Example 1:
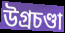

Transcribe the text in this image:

উগ্রচণ্ডা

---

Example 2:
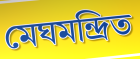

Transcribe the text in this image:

মেঘমন্দ্রিত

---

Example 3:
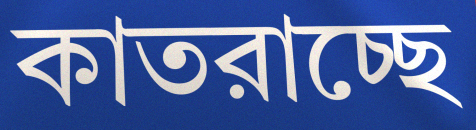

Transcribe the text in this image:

কাতরাচ্ছে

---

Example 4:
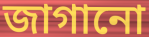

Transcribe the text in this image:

জাগানো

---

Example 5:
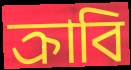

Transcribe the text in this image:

ক্রাবি